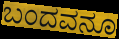
ಬಂದವನೂ